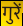
गुरें